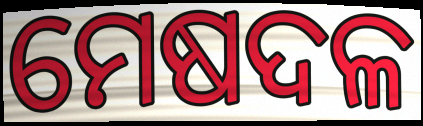
ମେଷଦଳ